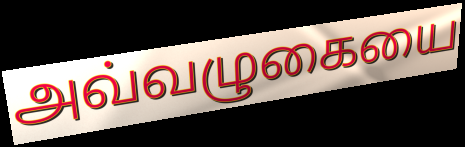
அவ்வழுகையை